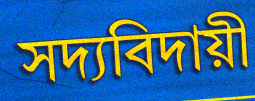
সদ্যবিদায়ী